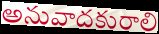
అనువాదకురాలి